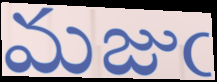
మజుఁ